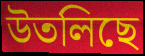
উতলিছে